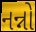
નન્નો